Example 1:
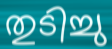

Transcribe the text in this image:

തുടിച്ചു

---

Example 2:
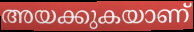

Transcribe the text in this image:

അയക്കുകയാണ്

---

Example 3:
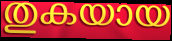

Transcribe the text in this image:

തുകയായ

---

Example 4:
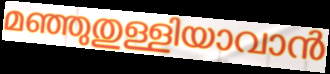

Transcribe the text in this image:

മഞ്ഞുതുള്ളിയാവാൻ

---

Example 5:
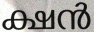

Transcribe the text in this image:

ക്ഷൻ